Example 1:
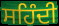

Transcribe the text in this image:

ਸਹਿੰਦੀ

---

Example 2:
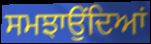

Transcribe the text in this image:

ਸਮਝਾਉਂਦਿਆਂ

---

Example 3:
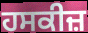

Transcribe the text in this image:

ਹਸਕੀਜ਼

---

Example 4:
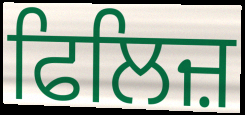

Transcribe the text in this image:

ਫਿਲਿਜ਼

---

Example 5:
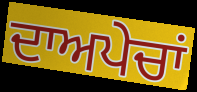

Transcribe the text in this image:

ਦਾਅਪੇਚਾਂ